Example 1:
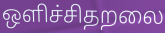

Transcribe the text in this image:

ஒளிச்சிதறலை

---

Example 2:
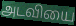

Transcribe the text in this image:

அடவியை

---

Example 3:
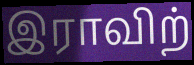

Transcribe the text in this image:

இராவிற்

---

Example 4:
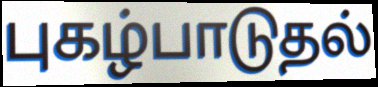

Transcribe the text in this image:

புகழ்பாடுதல்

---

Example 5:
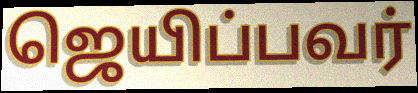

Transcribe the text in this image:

ஜெயிப்பவர்